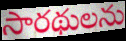
సారథులను